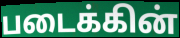
படைக்கின்